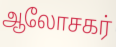
ஆலோசகர்